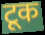
टूक